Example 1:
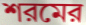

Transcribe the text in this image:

শরমের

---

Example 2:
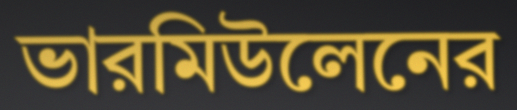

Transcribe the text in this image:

ভারমিউলেনের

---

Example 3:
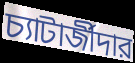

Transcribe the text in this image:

চ্যাটার্জীদার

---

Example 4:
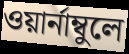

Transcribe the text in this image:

ওয়ার্নাম্বুলে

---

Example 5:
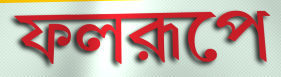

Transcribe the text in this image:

ফলরূপে